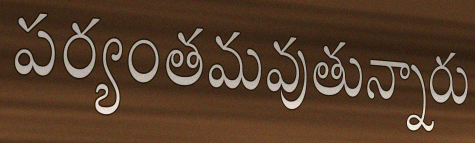
పర్యంతమవుతున్నారు